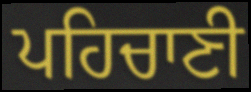
ਪਹਿਚਾਣੀ